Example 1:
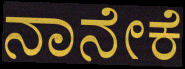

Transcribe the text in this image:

ನಾನೇಕೆ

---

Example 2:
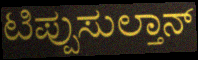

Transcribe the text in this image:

ಟಿಪ್ಪುಸುಲ್ತಾನ್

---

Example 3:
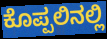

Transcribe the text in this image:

ಕೊಪ್ಪಲಿನಲ್ಲಿ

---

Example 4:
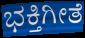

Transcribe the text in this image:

ಭಕ್ತಿಗೀತೆ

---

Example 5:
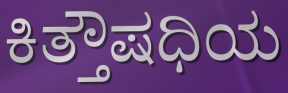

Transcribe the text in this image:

ಕಿತ್ತೌಷಧಿಯ